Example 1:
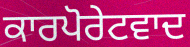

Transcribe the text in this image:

ਕਾਰਪੋਰੇਟਵਾਦ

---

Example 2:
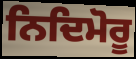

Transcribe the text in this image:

ਨਿਦਿਮੋਰੂ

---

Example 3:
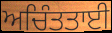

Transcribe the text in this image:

ਅਚਿੰਤਤਾਈ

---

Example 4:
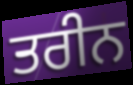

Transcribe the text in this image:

ਤਰੀਨ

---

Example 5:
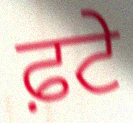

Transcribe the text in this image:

ਫ਼ਟੇ